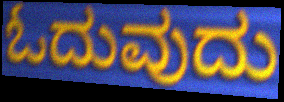
ಓದುವುದು